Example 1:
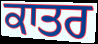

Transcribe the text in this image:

ਕਾਤਰ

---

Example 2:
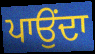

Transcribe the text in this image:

ਪਾਉਂਦਾ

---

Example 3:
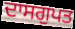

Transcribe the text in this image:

ਦਾਸਗੁਪਤ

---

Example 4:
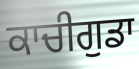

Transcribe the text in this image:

ਕਾਚੀਗੁਡਾ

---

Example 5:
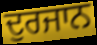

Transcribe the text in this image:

ਦੁਰਜਾਨ